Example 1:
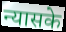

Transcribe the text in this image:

न्यासके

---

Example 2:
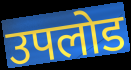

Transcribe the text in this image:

उपलोड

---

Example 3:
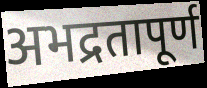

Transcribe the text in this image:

अभद्रतापूर्ण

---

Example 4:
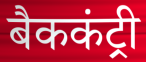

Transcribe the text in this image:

बैककंट्री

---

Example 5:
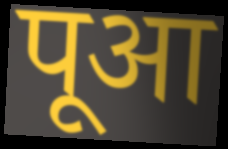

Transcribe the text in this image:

पूआ